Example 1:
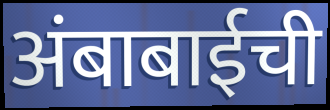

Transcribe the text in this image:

अंबाबाईची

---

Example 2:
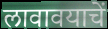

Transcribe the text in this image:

लावावयाचें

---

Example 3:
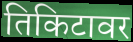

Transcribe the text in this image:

तिकिटावर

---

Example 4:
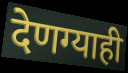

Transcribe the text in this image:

देणग्याही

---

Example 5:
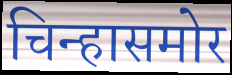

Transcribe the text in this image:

चिन्हासमोर